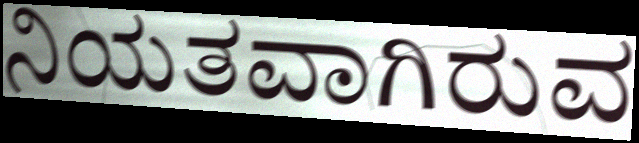
ನಿಯತವಾಗಿರುವ